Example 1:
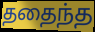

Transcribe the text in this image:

ததைந்த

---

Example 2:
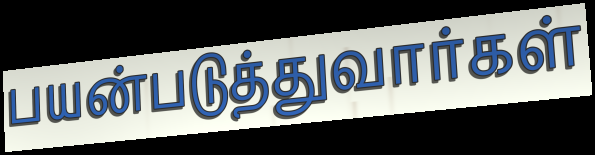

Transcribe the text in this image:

பயன்படுத்துவார்கள்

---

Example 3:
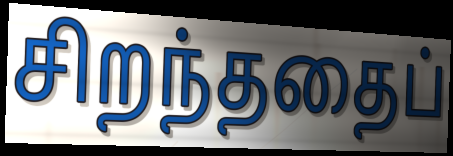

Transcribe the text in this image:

சிறந்ததைப்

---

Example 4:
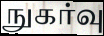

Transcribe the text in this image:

நுகர்வு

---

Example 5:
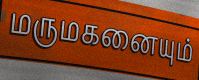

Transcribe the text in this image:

மருமகனையும்